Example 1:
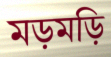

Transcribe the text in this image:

মড়মড়ি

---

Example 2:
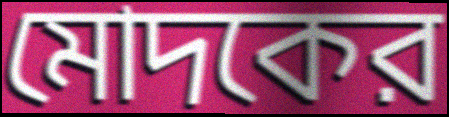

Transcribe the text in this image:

মোদকের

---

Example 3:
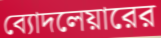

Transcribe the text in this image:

ব্যোদলেয়ারের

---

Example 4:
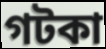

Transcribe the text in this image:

গটকা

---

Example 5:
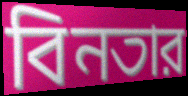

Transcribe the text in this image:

বিনতার